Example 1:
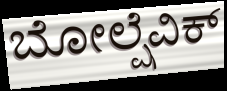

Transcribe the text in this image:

ಬೋಲ್ಷೆವಿಕ್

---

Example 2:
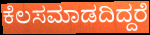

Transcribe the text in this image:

ಕೆಲಸಮಾಡದಿದ್ದರೆ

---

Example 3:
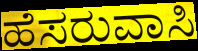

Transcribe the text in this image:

ಹೆಸರುವಾಸಿ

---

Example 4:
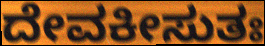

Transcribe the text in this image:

ದೇವಕೀಸುತಃ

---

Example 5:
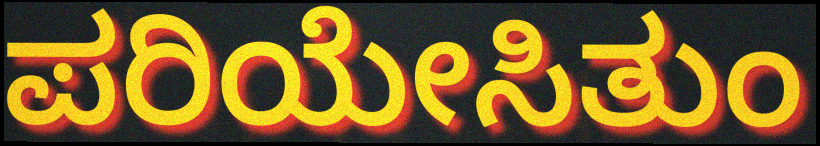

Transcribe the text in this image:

ಪರಿಯೇಸಿತುಂ